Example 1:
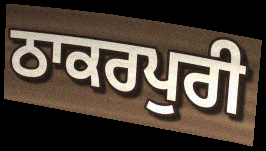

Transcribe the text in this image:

ਠਾਕਰਪੁਰੀ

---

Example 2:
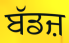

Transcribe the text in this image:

ਬੱਡਜ਼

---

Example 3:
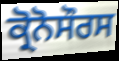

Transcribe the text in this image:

ਕ੍ਰੋਨੋਸੌਰਸ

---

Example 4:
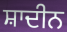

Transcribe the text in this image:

ਸ਼ਾਦੀਨ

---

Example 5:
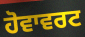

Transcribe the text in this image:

ਹੋਵਾਵਰਟ